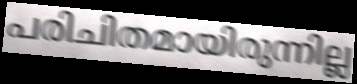
പരിചിതമായിരുന്നില്ല